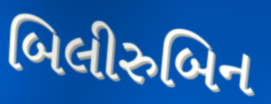
બિલીરુબિન